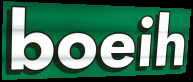
boeih